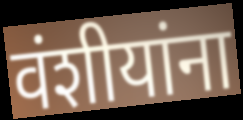
वंशीयांना